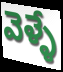
వెళ్ళే